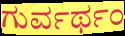
ಗುರ್ವರ್ಥಂ